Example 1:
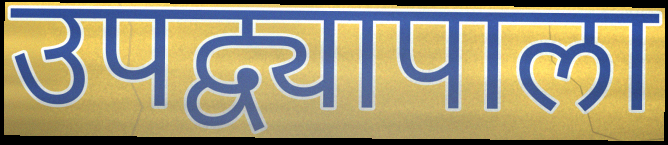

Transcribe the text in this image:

उपद्व्यापाला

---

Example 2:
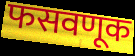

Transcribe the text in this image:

फसवणूक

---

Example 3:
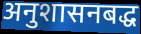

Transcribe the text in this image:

अनुशासनबद्ध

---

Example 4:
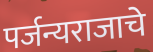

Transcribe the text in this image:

पर्जन्यराजाचे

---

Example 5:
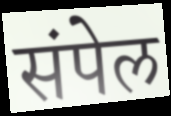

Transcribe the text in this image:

संपेल